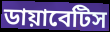
ডায়াবেটিস